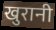
खुरानी